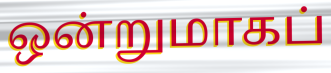
ஒன்றுமாகப்